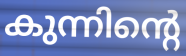
കുന്നിന്റെ